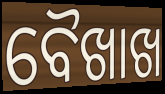
ବୈଖାଖ